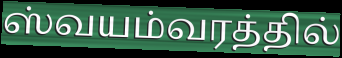
ஸ்வயம்வரத்தில்